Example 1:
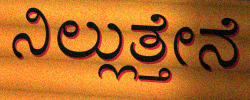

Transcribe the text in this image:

ನಿಲ್ಲುತ್ತೇನೆ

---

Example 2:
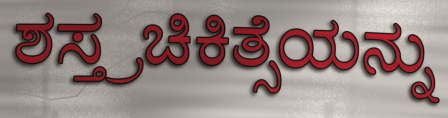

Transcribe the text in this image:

ಶಸ್ತ್ರಚಿಕಿತ್ಸೆಯನ್ನು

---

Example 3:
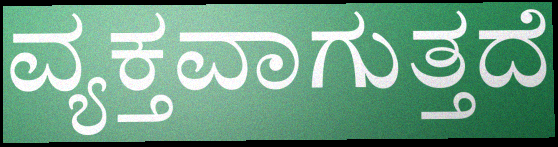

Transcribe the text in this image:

ವ್ಯಕ್ತವಾಗುತ್ತದೆ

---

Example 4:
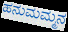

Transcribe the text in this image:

ಹನುಮಮ್ಮನ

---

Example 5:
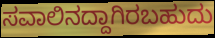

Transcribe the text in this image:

ಸವಾಲಿನದ್ದಾಗಿರಬಹುದು